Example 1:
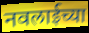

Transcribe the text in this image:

नवलाईच्या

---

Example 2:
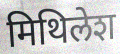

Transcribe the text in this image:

मिथिलेश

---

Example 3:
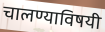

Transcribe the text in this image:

चालण्याविषयी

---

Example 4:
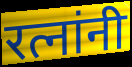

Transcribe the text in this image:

रत्नांनी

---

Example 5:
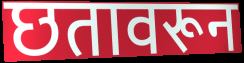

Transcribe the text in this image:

छतावरून